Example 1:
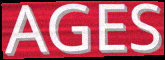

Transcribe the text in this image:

AGES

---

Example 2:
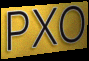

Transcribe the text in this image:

PXO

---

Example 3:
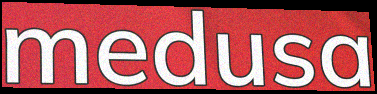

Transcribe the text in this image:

medusa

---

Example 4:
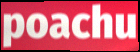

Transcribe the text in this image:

poachu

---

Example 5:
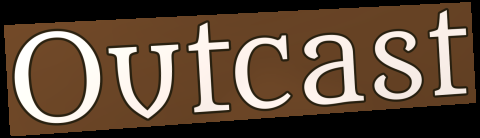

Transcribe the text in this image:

Outcast